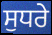
ਸੁਧਰੇ